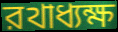
রথাধ্যক্ষ